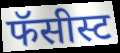
फॅसीस्ट